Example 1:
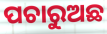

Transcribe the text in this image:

ପଚାରୁଅଛ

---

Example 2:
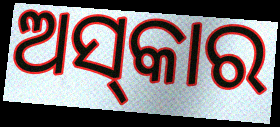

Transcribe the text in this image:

ଅସ୍‌କାର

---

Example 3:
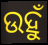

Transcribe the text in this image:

ଉହୁଁ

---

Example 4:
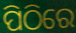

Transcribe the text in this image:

ପିଠିରେ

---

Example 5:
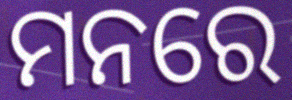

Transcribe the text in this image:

ମନରେ